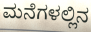
ಮನೆಗಳಲ್ಲಿನ